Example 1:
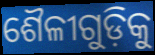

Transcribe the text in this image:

ଶୈଳୀଗୁଡ଼ିକୁ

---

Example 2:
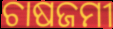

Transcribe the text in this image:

ଚାଷଜମୀ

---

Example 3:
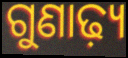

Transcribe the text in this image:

ଗୁଣାଢ଼୍ୟ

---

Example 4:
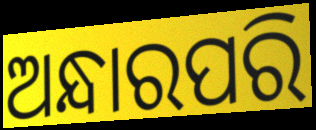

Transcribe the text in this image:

ଅନ୍ଧାରପରି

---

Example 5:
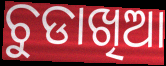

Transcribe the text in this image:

ଚୁଡାଖିଆ